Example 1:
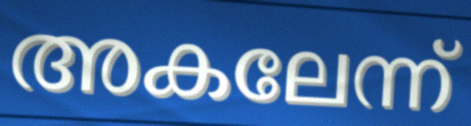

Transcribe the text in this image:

അകലേന്ന്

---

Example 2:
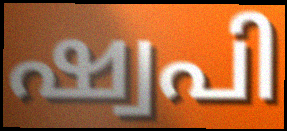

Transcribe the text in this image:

ഷ്വപി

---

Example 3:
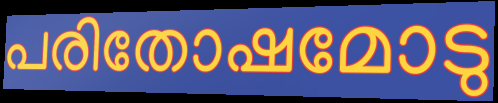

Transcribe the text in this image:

പരിതോഷമോടു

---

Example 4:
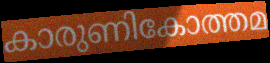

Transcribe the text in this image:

കാരുണികോത്തമ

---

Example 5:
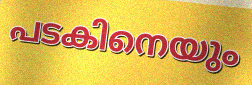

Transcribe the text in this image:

പടകിനെയും